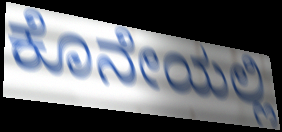
ಕೊನೇಯಲ್ಲಿ